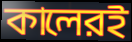
কালেরই